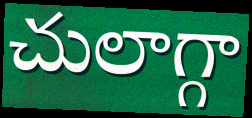
చులాగ్గా